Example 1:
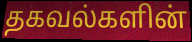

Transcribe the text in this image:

தகவல்களின்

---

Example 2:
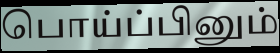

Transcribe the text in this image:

பொய்ப்பினும்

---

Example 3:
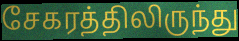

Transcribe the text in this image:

சேகரத்திலிருந்து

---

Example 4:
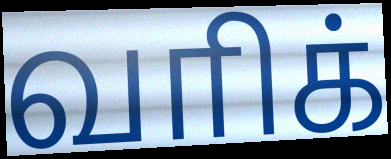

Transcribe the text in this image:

வரிக்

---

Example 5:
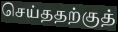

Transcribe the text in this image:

செய்ததற்குத்